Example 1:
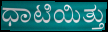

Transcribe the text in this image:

ಧಾಟಿಯಿತ್ತು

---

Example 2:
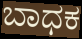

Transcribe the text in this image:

ಬಾಧಕ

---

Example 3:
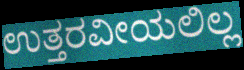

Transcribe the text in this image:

ಉತ್ತರವೀಯಲಿಲ್ಲ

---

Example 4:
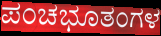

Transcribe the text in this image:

ಪಂಚಭೂತಂಗಳ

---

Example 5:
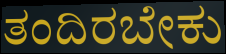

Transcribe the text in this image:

ತಂದಿರಬೇಕು